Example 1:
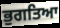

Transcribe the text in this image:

ਭੁਗਤਿਆ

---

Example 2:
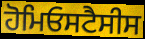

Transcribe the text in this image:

ਹੋਮਿਓਸਟੈਸੀਸ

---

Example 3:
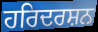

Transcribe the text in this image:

ਹਰਿਦਰਸ਼ਨ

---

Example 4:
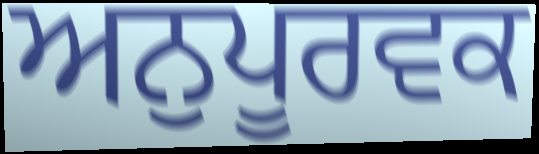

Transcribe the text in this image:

ਅਨੁਪੂਰਵਕ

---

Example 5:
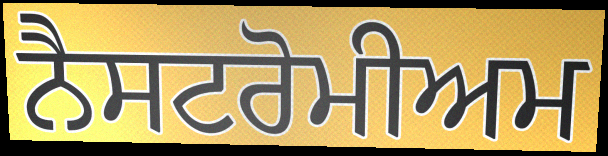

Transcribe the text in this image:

ਨੈਸਟਰੋਮੀਅਮ